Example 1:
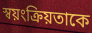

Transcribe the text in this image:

স্বয়ংক্রিয়তাকে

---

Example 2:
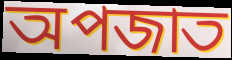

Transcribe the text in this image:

অপজাত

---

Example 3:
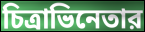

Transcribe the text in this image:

চিত্রাভিনেতার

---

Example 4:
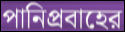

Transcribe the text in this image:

পানিপ্রবাহের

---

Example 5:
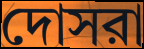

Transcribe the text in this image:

দোসরা